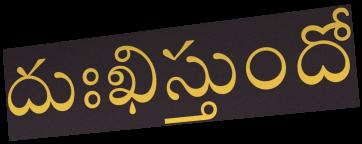
దుఃఖిస్తుందో